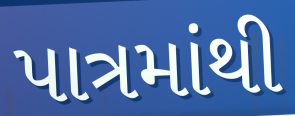
પાત્રમાંથી